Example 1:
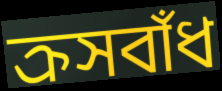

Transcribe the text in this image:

ক্রসবাঁধ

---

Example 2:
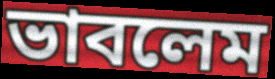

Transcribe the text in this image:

ভাবলেম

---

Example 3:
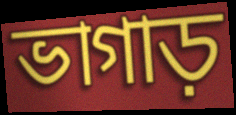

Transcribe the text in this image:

ভাগাড়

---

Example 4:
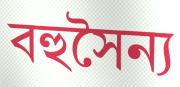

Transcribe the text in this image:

বহুসৈন্য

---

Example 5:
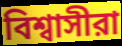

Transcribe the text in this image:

বিশ্বাসীরা